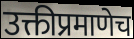
उक्तीप्रमाणेच